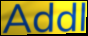
Addl